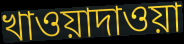
খাওয়াদাওয়া